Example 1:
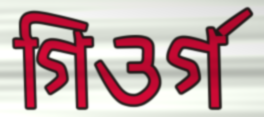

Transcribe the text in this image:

গিওৰ্গ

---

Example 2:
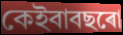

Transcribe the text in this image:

কেইবাবছৰো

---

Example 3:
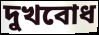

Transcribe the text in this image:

দুখবোধ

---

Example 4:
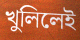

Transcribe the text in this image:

খুলিলেই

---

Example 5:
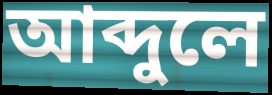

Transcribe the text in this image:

আব্দুলে